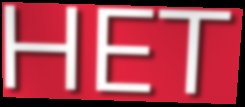
HET